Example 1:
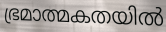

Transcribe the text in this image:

ഭ്രമാത്മകതയിൽ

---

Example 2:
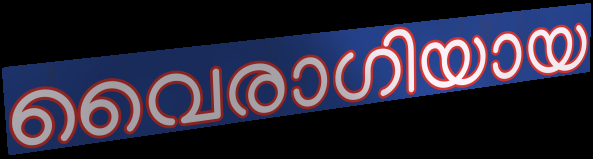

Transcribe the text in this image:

വൈരാഗിയായ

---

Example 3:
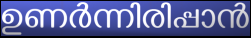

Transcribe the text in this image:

ഉണർന്നിരിപ്പാൻ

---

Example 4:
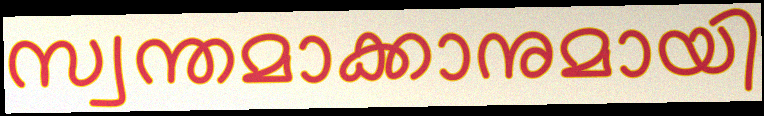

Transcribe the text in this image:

സ്വന്തമാക്കാനുമായി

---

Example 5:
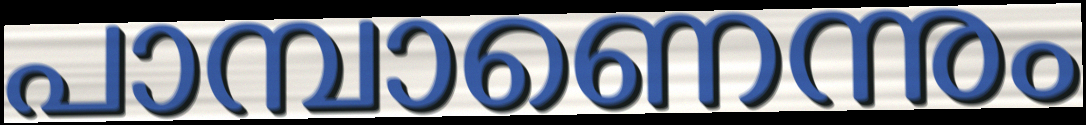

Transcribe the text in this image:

പാമ്പാണെന്നും